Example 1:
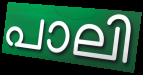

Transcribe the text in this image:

പാലി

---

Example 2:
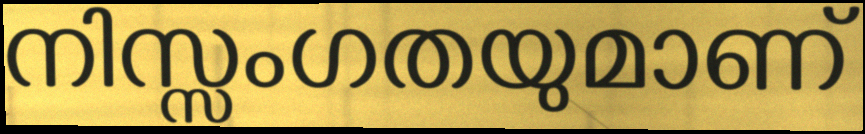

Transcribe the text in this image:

നിസ്സംഗതയുമാണ്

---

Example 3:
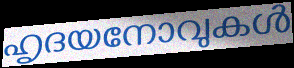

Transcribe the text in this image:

ഹൃദയനോവുകൾ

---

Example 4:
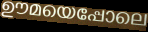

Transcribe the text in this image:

ഊമയെപ്പോലെ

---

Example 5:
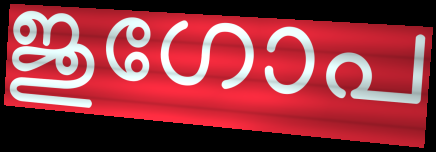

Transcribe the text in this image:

ജുഗോപ